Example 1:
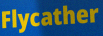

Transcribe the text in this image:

Flycather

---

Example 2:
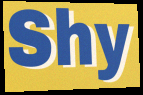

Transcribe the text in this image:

Shy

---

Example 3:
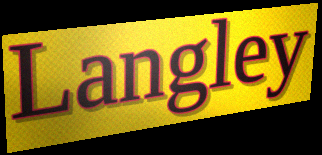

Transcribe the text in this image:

Langley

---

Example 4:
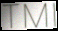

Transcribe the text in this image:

TMI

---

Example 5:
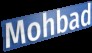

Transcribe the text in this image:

Mohbad